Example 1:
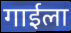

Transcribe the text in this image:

गाईला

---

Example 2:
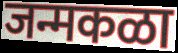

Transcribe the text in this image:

जन्मकळा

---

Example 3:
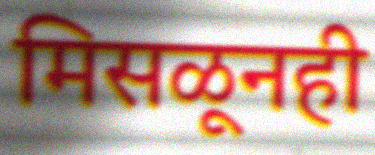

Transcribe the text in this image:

मिसळूनही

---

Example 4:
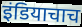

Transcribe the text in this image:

इंडियाचाच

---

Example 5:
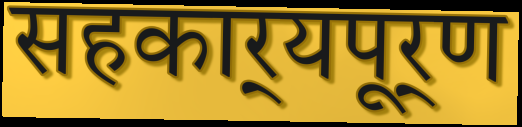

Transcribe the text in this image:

सहकार्यपूर्ण